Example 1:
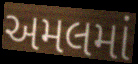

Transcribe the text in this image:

અમલમાં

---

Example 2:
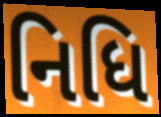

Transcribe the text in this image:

નિધિ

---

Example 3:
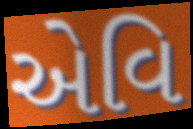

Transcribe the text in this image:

એવિ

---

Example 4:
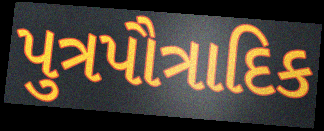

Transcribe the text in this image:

પુત્રપૌત્રાદિક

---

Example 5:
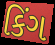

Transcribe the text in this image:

કિંગ